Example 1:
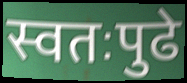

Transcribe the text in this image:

स्वतःपुढे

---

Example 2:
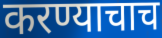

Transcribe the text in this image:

करण्याचाच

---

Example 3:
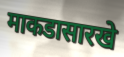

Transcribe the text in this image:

माकडासारखे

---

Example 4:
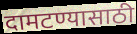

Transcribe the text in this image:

दामटण्यासाठी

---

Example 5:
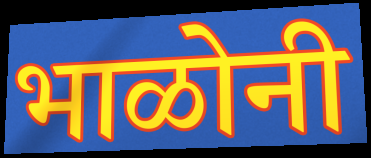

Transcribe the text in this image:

भाळोनी